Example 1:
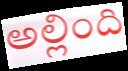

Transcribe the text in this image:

అల్లింది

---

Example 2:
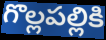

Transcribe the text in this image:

గొల్లపల్లికి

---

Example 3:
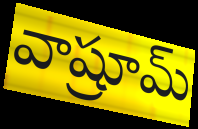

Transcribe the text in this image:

వాష్రూమ్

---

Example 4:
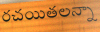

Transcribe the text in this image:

రచయితలన్నా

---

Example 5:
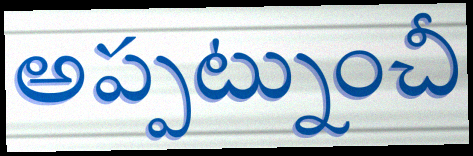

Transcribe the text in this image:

అప్పట్నుంచీ